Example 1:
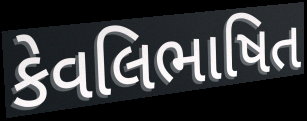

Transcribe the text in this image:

કેવલિભાષિત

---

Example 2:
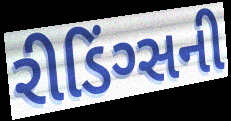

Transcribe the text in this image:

રીડિંગ્સની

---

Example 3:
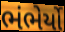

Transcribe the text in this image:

ભંભેર્યો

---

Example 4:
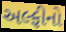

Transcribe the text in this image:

અલ્ફીનો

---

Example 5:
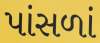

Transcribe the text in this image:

પાંસળાં